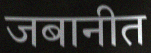
जबानीत